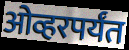
ओव्हरपर्यंत